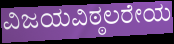
ವಿಜಯವಿಠ್ಠಲರೇಯ